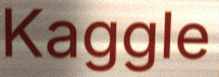
Kaggle